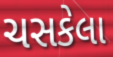
ચસકેલા